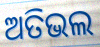
ଅତିଭଲ